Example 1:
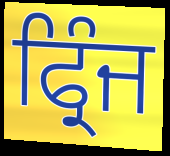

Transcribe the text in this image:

ਫ੍ਰਿੰਜ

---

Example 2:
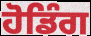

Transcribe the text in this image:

ਹੋਡਿੰਗ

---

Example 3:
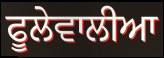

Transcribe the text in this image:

ਫੂਲੇਵਾਲੀਆ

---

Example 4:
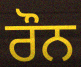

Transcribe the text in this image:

ਰੌਨ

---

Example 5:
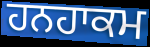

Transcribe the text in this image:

ਹਨਹਾਕਮ